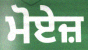
ਮੋਏਜ਼